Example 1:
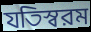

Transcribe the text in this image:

যতিস্বরম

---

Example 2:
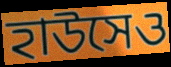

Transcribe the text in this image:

হাউসেও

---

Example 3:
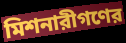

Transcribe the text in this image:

মিশনারীগণের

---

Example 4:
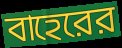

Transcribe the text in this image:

বাহেরের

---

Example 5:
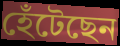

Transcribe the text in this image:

হেঁটেছেন